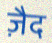
ज़ैद